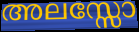
അലസ്സോ